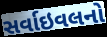
સર્વાઇવલનો